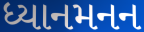
ધ્યાનમનન